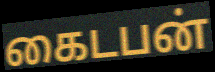
கைடபன்